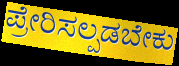
ಪ್ರೇರಿಸಲ್ಪಡಬೇಕು